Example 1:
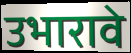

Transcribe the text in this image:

उभारावे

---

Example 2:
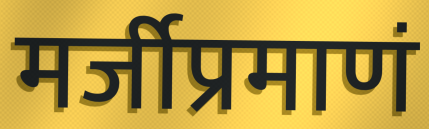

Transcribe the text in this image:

मर्जीप्रमाणं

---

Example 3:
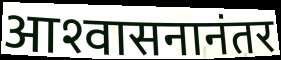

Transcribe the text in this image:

आश्वासनानंतर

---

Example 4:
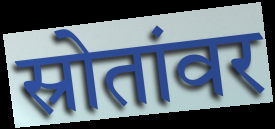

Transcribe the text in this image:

स्रोतांवर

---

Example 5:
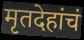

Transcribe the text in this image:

मृतदेहांचं